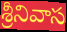
శ్రీనివాస